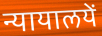
न्यायालयें